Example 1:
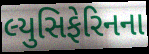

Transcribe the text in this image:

લ્યુસિફેરિનના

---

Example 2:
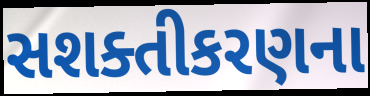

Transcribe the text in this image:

સશક્તીકરણના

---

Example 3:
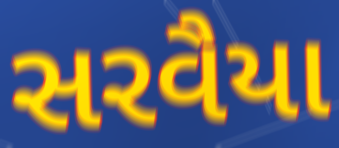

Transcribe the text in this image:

સરવૈયા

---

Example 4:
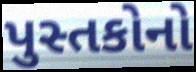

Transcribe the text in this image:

પુસ્તકોનો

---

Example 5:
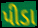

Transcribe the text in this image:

પીડા